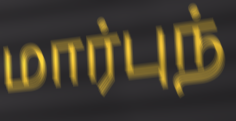
மார்புந்